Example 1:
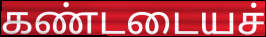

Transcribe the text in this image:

கண்டடையச்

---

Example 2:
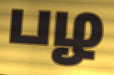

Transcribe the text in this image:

பழ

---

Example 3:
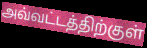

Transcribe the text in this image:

அவ்வட்டத்திற்குள்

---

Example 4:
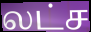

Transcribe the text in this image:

லட்ச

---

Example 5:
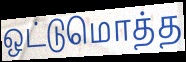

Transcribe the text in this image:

ஒட்டுமொத்த